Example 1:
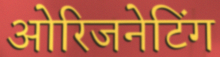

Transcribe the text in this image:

ओरिजनेटिंग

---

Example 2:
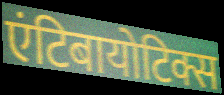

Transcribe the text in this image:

एंटिबायोटिक्स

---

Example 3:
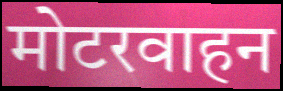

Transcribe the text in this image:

मोटरवाहन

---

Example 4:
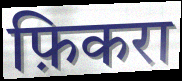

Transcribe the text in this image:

फ़िकरा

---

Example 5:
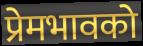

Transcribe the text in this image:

प्रेमभावको